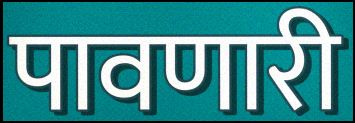
पावणारी